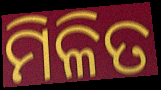
ମିଳିତ